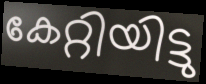
കേറ്റിയിട്ടു